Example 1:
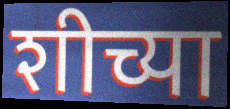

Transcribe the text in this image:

शीच्या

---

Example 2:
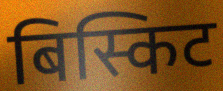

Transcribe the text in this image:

बिस्किट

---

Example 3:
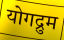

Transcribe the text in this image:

योगद्रुम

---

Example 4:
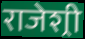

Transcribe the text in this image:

राजेश्री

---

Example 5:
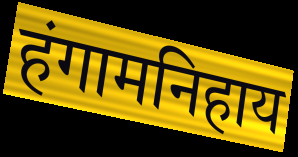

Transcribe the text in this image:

हंगामनिहाय